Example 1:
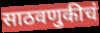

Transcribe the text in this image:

साठवणुकीचं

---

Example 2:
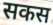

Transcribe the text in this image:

सकस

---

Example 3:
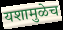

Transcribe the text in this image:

यशामुळेच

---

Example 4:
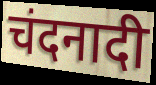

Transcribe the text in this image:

चंदनादी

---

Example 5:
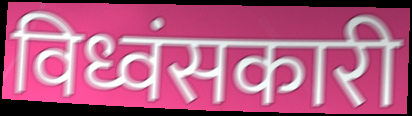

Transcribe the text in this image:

विध्वंसकारी